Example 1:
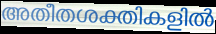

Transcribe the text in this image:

അതീതശക്തികളിൽ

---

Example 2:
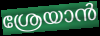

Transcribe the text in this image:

ശ്രേയാൻ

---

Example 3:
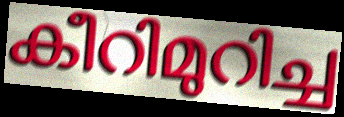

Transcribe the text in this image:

കീറിമുറിച്ച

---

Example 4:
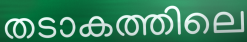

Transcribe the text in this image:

തടാകത്തിലെ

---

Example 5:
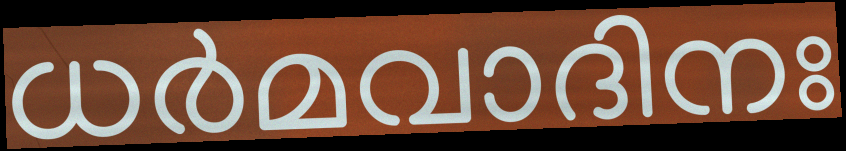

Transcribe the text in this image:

ധർമവാദിനഃ